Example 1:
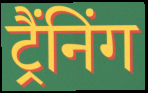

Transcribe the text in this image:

ट्रैंनिंग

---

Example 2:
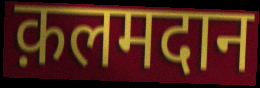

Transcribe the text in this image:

क़लमदान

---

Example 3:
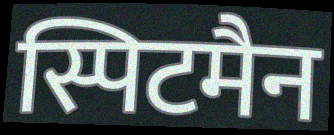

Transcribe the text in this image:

स्पिटमैन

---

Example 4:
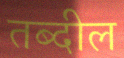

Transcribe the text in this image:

तब्दील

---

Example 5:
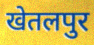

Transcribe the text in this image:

खेतलपुर